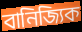
বানিজ্যিক